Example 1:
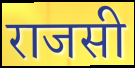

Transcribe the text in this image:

राजसी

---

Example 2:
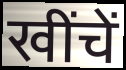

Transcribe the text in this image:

खींचें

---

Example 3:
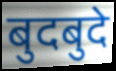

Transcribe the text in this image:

बुदबुदे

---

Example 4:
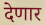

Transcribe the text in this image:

देणार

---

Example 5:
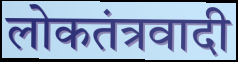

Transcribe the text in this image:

लोकतंत्रवादी